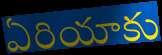
ఏరియాకు